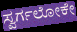
ಸ್ವರ್ಗಲೋಕೇ